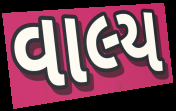
વાલ્ય